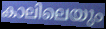
കാലിലെയും